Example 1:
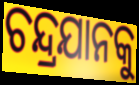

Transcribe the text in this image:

ଚନ୍ଦ୍ରଯାନକୁ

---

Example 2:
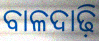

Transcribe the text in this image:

ବାଳଦାଢ଼ି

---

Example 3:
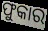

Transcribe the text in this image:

ଫୁକାର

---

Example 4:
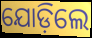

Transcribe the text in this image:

ଯୋଡ଼ିଲେ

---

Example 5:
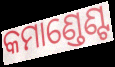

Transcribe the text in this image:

କମାଣ୍ଡେଣ୍ଟ